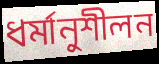
ধৰ্মানুশীলন